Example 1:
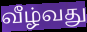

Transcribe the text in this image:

வீழ்வது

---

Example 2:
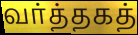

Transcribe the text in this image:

வர்த்தகத்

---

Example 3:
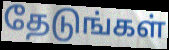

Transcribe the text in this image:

தேடுங்கள்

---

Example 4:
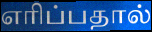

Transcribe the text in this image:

எரிப்பதால்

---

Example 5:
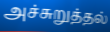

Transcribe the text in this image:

அச்சுறுத்தல்